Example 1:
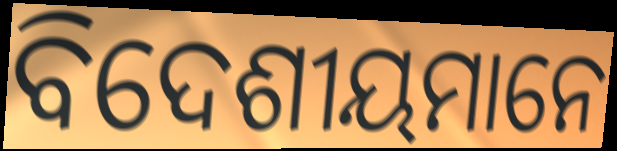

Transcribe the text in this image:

ବିଦେଶୀୟମାନେ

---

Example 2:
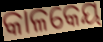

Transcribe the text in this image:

କାଳକେୟ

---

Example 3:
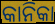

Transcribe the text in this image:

କାନିକା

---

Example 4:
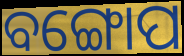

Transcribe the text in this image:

ବଙ୍ଗୋପ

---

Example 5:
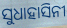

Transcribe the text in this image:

ସୁଧାହାସିନୀ